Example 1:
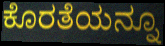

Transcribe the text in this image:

ಕೊರತೆಯನ್ನೂ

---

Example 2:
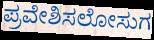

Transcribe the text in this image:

ಪ್ರವೇಶಿಸಲೋಸುಗ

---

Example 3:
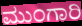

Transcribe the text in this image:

ಮುಂಗಾರಿ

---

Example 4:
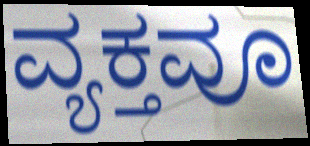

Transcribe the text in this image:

ವ್ಯಕ್ತವೂ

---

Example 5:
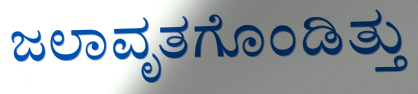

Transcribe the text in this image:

ಜಲಾವೃತಗೊಂಡಿತ್ತು